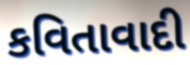
કવિતાવાદી